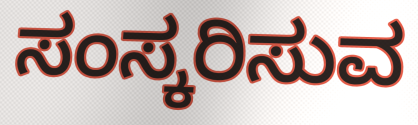
ಸಂಸ್ಕರಿಸುವ